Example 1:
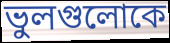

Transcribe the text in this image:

ভুলগুলোকে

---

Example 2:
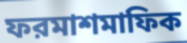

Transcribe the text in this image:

ফরমাশমাফিক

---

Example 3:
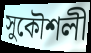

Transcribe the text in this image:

সুকৌশলী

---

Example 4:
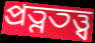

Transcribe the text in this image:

প্রত্নতত্ত্ব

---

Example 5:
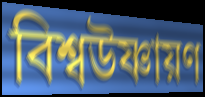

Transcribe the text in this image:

বিশ্বউষ্ণায়ণ